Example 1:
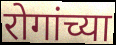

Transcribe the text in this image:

रोगांच्या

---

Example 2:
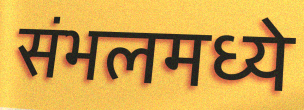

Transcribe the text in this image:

संभलमध्ये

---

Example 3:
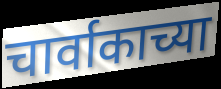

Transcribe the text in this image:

चार्वाकाच्या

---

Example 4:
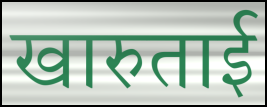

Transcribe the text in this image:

खारुताई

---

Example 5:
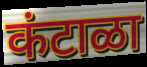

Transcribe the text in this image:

कंटाळा